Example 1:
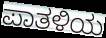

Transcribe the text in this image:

ಪಾತಳಿಯ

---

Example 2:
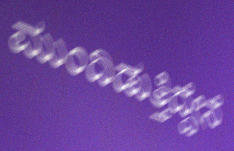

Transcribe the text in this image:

ಮುಂದಿಡುತ್ತಿದ್ದೇನೆ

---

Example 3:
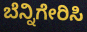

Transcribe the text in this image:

ಬೆನ್ನಿಗೇರಿಸಿ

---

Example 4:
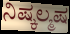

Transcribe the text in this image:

ನಿಷ್ಕಲ್ಮಷ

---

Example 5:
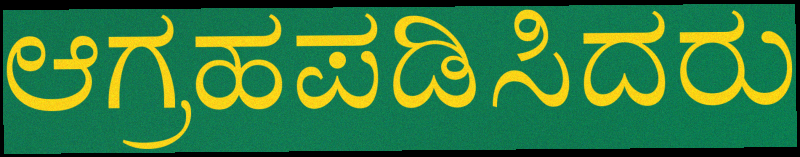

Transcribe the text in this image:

ಆಗ್ರಹಪಡಿಸಿದರು